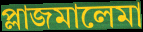
প্লাজমালেমা